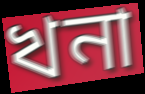
খনা